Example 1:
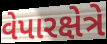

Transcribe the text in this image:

વેપારક્ષેત્રે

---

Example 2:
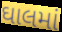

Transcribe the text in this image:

ઘાલમાં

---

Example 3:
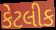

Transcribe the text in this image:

કેટલીક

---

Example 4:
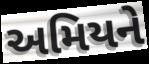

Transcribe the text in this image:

અમિયને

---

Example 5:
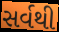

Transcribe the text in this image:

સર્વથી